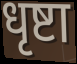
धृष्टा